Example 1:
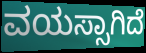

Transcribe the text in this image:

ವಯಸ್ಸಾಗಿದೆ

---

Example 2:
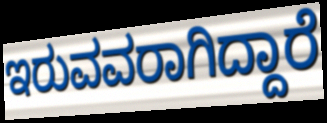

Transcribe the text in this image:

ಇರುವವರಾಗಿದ್ದಾರೆ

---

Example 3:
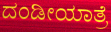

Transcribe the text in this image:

ದಂಡೀಯಾತ್ರೆ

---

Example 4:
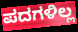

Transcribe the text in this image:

ಪದಗಳಿಲ್ಲ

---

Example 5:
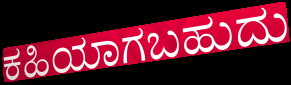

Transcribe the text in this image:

ಕಹಿಯಾಗಬಹುದು